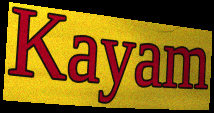
Kayam